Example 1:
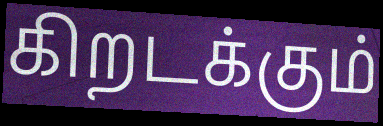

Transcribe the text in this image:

கிறடக்கும்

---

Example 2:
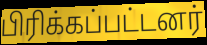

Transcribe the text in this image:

பிரிக்கப்பட்டனர்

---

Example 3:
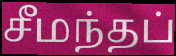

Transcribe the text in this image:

சீமந்தப்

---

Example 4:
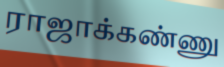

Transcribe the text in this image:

ராஜாக்கண்ணு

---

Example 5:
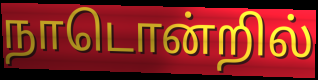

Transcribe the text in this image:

நாடொன்றில்